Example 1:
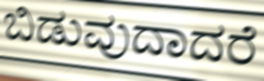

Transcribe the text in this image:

ಬಿಡುವುದಾದರೆ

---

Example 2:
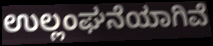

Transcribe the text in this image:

ಉಲ್ಲಂಘನೆಯಾಗಿವೆ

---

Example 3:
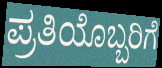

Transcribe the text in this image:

ಪ್ರತಿಯೊಬ್ಬರಿಗೆ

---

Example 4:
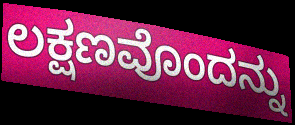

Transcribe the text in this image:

ಲಕ್ಷಣವೊಂದನ್ನು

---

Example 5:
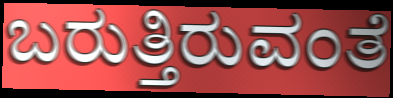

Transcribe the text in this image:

ಬರುತ್ತಿರುವಂತೆ